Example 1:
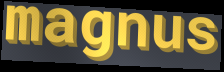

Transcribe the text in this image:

magnus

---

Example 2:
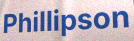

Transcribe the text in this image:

Phillipson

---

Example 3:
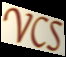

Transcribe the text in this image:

VCS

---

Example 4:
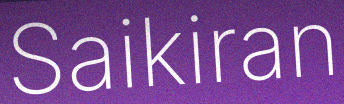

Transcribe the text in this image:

Saikiran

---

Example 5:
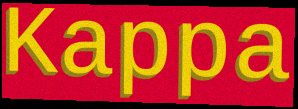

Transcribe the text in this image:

Kappa